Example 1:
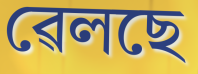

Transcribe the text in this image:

ৱেলছে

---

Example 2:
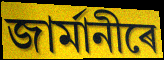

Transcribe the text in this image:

জাৰ্মানীৰে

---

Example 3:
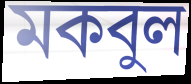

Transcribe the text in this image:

মকবুল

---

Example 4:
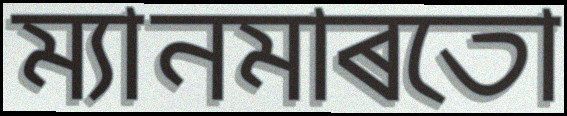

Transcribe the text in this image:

ম্যানমাৰতো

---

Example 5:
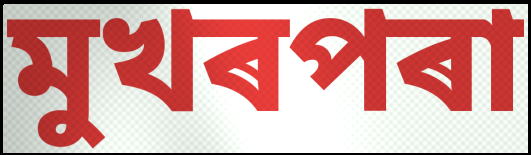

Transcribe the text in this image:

মুখৰপৰা